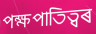
পক্ষপাতিত্বৰ